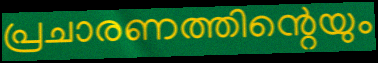
പ്രചാരണത്തിന്റെയും